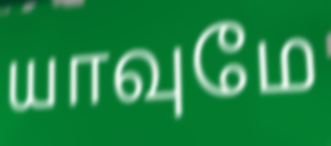
யாவுமே